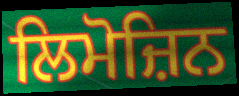
ਲਿਮੋਜ਼ਿਨ